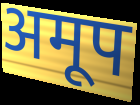
अमूप